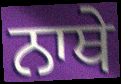
ਨਾਥੇ